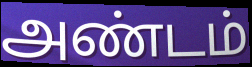
அண்டம்